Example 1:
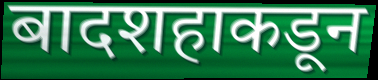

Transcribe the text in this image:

बादशहाकडून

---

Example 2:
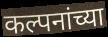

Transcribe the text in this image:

कल्पनांच्या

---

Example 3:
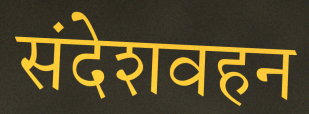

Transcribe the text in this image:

संदेशवहन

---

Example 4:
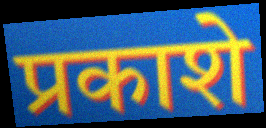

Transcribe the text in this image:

प्रकाशे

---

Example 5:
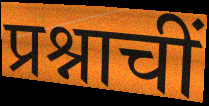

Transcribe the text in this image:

प्रश्नाचीं